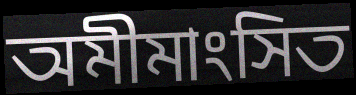
অমীমাংসিত